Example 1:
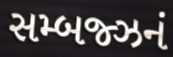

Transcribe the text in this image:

સમ્બજ્ઝનં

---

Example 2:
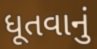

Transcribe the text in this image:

ધૂતવાનું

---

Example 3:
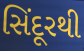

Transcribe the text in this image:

સિંદૂરથી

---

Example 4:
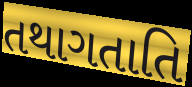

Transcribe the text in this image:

તથાગતાતિ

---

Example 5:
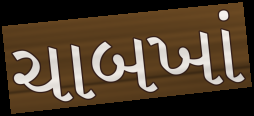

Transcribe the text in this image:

ચાબખાં